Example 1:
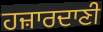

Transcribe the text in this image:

ਹਜ਼ਾਰਦਾਣੀ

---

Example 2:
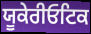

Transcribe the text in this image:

ਯੂਕੇਰੀਓਟਿਕ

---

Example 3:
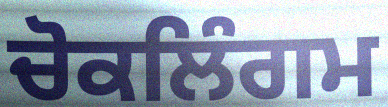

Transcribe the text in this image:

ਚੋਕਲਿੰਗਮ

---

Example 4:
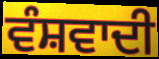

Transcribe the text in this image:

ਵੰਸ਼ਵਾਦੀ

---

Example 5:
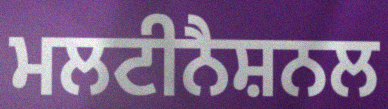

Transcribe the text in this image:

ਮਲਟੀਨੈਸ਼ਨਲ